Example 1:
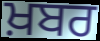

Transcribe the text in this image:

ਖ਼ਬਰ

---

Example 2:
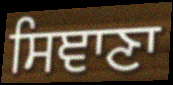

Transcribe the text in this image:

ਸਿਞਾਣਾ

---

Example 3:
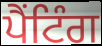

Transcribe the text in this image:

ਪੈਂਟਿੰਗ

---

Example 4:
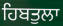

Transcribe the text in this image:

ਹਿਬਤੁਲਾ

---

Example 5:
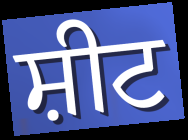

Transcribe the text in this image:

ਸ਼ੀਟ